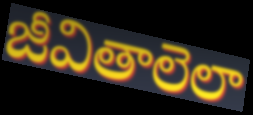
జీవితాలెలా